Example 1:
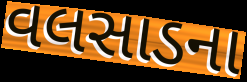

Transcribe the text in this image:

વલસાડના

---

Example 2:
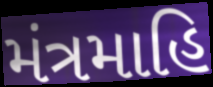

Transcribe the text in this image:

મંત્રમાહિ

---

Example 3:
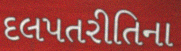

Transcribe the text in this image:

દલપતરીતિના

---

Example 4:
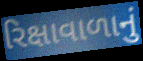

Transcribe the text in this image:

રિક્ષાવાળાનું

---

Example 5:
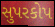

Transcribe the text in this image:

સુપરકોપ